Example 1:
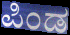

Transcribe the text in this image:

ಪಿಂಡ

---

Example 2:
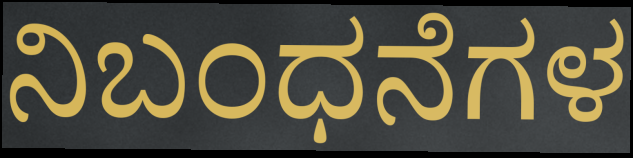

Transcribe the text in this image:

ನಿಬಂಧನೆಗಳ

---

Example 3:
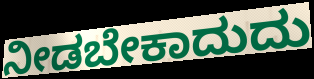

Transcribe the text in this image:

ನೀಡಬೇಕಾದುದು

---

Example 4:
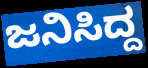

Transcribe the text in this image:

ಜನಿಸಿದ್ದ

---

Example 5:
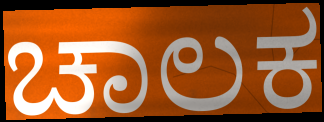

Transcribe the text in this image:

ಚಾಲಕ